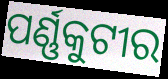
ପର୍ଣ୍ଣକୁଟୀର